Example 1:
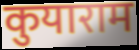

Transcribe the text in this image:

कुयाराम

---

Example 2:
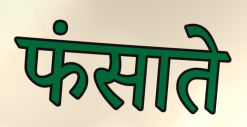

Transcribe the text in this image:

फंसाते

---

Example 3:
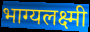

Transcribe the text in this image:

भाग्यलक्ष्मी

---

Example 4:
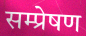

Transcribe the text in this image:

सम्प्रेषण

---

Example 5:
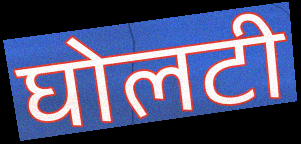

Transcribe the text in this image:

घोलटी